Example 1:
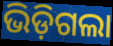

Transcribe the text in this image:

ଭିଡ଼ିଗଲା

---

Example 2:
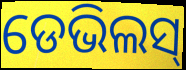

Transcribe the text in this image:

ଡେଭିଲସ୍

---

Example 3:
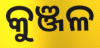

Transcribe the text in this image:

କୁଞ୍ଜଳ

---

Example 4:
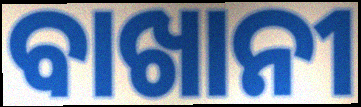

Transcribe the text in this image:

ବାଖାନୀ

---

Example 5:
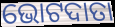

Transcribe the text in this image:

ଭୋଟଦାତା